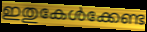
ഇതുകേൾക്കേണ്ട